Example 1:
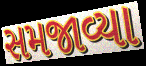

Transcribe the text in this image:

સમજાવ્યા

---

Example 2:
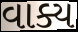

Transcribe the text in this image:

વાક્ય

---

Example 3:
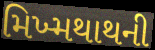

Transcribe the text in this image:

મિખ્મથાથની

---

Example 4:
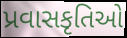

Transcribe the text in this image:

પ્રવાસકૃતિઓ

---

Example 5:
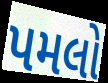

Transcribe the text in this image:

પમલો